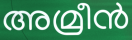
അമ്രീൻ